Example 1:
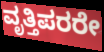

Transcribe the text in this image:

ವೃತ್ತಿಪರರೇ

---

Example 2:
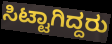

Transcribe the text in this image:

ಸಿಟ್ಟಾಗಿದ್ದರು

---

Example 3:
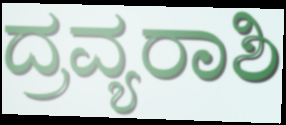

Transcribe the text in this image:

ದ್ರವ್ಯರಾಶಿ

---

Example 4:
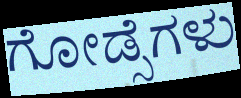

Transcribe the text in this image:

ಗೋಡ್ಸೆಗಳು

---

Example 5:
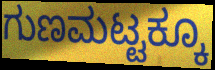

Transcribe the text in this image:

ಗುಣಮಟ್ಟಕ್ಕೂ